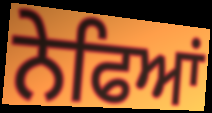
ਨੇਫਿਆਂ